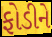
ફોડીને